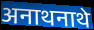
अनाथनाथे